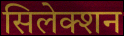
सिलेक्शन